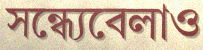
সন্ধ্যেবেলাও